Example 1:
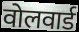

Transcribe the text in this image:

वोलवार्ड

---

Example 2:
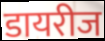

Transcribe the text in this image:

डायरीज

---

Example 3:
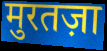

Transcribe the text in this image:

मुरतज़ा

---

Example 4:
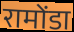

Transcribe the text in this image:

रामोंडा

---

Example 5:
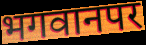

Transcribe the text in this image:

भगवानपर